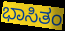
ಭಾಸಿತಂ